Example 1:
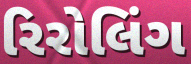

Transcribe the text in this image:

રિરોલિંગ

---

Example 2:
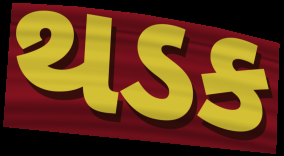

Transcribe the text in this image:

થડક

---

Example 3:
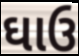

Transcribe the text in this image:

ઘાઉ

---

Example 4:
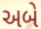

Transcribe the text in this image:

અબે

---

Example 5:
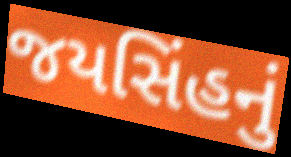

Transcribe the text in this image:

જયસિંહનું